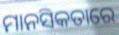
ମାନସିକତାରେ